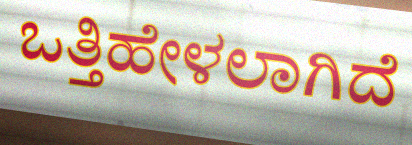
ಒತ್ತಿಹೇಳಲಾಗಿದೆ